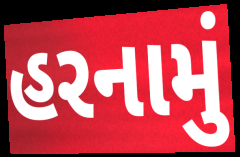
હરનામું